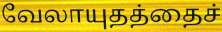
வேலாயுதத்தைச்